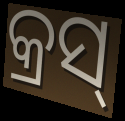
କ୍ରସ୍